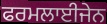
ਫਰਮਲਾਈਜੇਨ